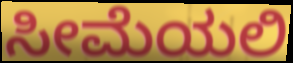
ಸೀಮೆಯಲಿ